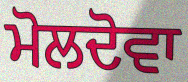
ਮੋਲਦੋਵਾ